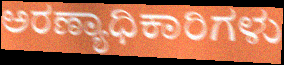
ಅರಣ್ಯಾಧಿಕಾರಿಗಳು